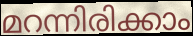
മറന്നിരിക്കാം